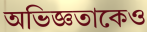
অভিজ্ঞতাকেও